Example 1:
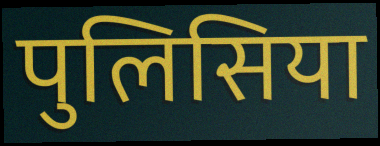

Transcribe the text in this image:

पुलिसिया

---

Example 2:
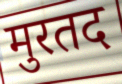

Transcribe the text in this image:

मुरतद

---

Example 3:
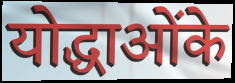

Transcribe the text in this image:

योद्धाओंके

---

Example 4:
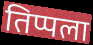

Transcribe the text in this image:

तिप्पला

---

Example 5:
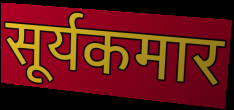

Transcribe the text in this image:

सूर्यकमार